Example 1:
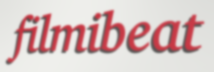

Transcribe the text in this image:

filmibeat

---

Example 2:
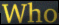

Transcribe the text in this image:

Who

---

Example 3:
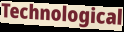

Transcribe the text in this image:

Technological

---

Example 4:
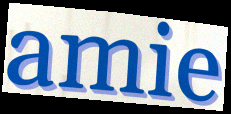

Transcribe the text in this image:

amie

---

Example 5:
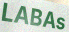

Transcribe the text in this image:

LABAs